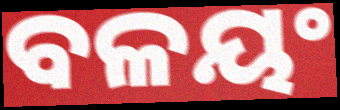
ବଳୟଂ